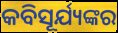
କବିସୂର୍ଯ୍ୟଙ୍କର